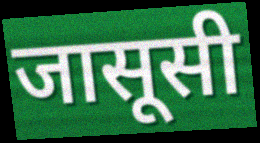
जासूसी